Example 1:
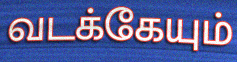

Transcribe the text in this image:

வடக்கேயும்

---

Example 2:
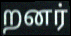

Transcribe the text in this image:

றனர்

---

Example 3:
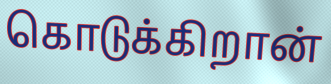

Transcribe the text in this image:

கொடுக்கிறான்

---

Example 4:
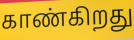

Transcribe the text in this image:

காண்கிறது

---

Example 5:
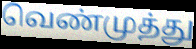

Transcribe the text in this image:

வெண்முத்து